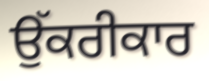
ਉੱਕਰੀਕਾਰ